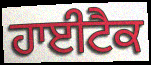
ਹਾਈਟੈਕ